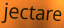
jectare